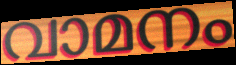
വാമനം